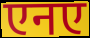
एनए